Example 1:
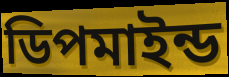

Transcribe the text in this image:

ডিপমাইন্ড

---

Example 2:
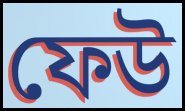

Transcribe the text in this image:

ফেউ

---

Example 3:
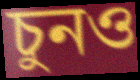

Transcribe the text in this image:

চুনও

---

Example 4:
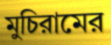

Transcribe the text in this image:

মুচিরামের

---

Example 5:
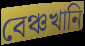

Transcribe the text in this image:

বেঞ্চখানি